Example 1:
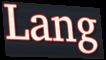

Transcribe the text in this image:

Lang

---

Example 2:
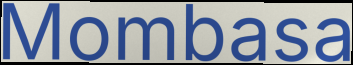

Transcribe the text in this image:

Mombasa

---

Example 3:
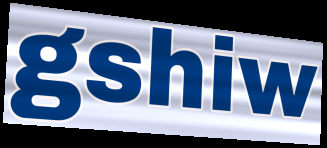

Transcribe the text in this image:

gshiw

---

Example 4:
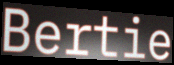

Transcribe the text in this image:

Bertie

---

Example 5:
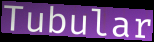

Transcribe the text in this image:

Tubular